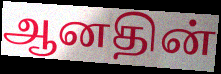
ஆனதின்